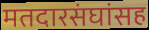
मतदारसंघांसह